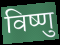
विष्णु